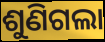
ଶୁଣିଗଲା